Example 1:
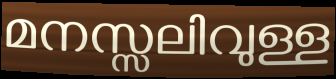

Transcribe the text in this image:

മനസ്സലിവുള്ള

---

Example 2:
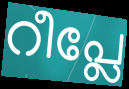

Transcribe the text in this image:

റീപ്ലേ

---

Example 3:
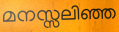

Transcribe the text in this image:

മനസ്സലിഞ്ഞ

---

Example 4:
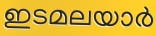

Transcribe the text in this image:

ഇടമലയാർ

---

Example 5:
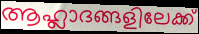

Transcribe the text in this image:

ആഹ്ലാദങ്ങളിലേക്ക്